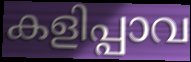
കളിപ്പാവ